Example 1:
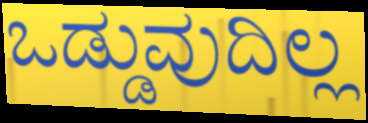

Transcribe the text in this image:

ಒಡ್ಡುವುದಿಲ್ಲ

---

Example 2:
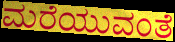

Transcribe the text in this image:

ಮರೆಯುವಂತೆ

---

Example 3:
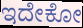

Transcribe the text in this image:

ಇದೇಕೋ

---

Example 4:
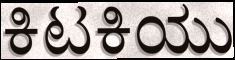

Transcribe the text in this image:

ಕಿಟಕಿಯು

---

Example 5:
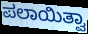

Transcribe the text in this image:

ಪಲಾಯಿತ್ವಾ